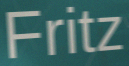
Fritz